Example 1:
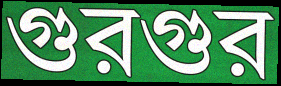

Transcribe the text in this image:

গুরগুর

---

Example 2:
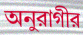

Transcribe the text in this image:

অনুরাগীর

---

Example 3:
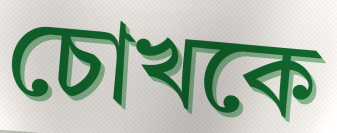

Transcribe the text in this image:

চোখকে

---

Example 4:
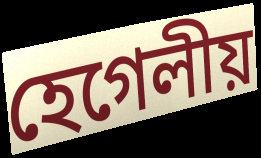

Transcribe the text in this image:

হেগেলীয়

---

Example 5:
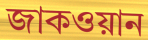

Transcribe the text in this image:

জাকওয়ান